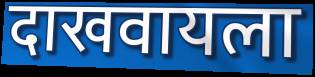
दाखवायला